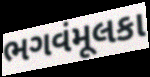
ભગવંમૂલકા